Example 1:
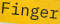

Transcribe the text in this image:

Finger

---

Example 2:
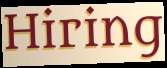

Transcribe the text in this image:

Hiring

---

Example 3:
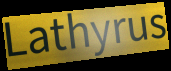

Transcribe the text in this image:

Lathyrus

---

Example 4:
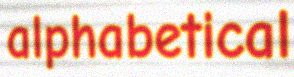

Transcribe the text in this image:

alphabetical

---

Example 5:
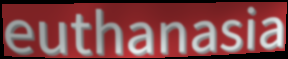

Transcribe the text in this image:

euthanasia